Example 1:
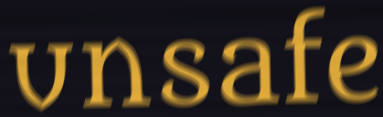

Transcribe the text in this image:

unsafe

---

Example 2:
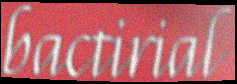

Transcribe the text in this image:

bactirial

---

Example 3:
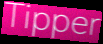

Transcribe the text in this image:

Tipper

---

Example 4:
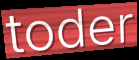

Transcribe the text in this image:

toder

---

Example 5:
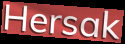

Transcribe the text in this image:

Hersak